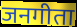
जनगीता